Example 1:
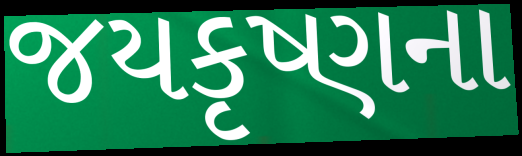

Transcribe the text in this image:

જયકૃષ્ણના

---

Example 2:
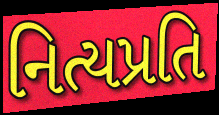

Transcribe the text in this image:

નિત્યપ્રતિ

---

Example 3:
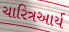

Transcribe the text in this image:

ચારિત્રઆર્ય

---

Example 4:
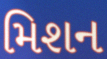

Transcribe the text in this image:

મિશન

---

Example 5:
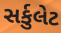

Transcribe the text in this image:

સર્કુલેટ